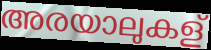
അരയാലുകള്